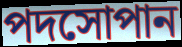
পদসোপান